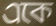
একে